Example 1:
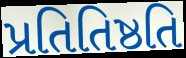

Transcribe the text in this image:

પ્રતિતિષ્ઠતિ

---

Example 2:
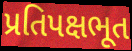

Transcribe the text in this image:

પ્રતિપક્ષભૂત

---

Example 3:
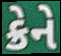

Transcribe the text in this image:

ક્રેને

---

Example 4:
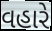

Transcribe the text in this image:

વહારે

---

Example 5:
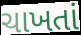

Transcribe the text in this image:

ચાખતાં